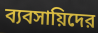
ব্যবসায়িদের